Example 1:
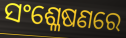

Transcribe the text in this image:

ସଂଶ୍ଳେଷଣରେ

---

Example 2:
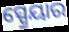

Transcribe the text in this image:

ସ୍ପ୍ରେୟାର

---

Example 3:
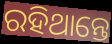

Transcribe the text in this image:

ରହିଥାନ୍ତେ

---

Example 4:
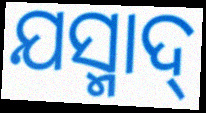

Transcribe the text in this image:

ଯସ୍ମାଦ୍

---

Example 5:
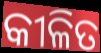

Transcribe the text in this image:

କୀଳିତ